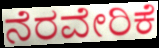
ನೆರವೇರಿಕೆ